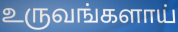
உருவங்களாய்